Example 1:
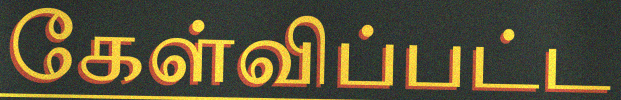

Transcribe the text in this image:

கேள்விப்பட்ட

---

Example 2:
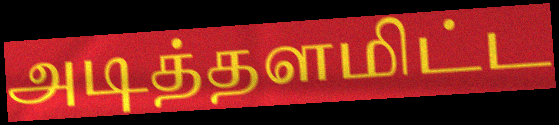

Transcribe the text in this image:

அடித்தளமிட்ட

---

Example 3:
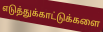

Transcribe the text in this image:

எடுத்துக்காட்டுக்களை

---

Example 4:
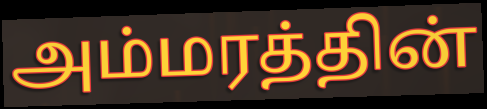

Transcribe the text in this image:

அம்மரத்தின்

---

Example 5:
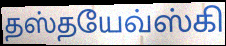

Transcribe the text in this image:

தஸ்தயேவ்ஸ்கி